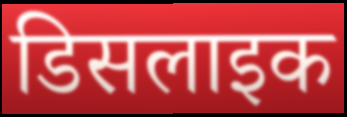
डिसलाइक